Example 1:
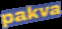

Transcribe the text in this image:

pakva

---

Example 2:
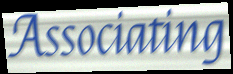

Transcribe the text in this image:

Associating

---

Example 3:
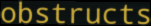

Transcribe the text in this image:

obstructs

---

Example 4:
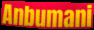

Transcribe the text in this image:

Anbumani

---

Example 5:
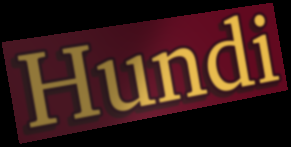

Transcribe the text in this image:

Hundi